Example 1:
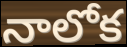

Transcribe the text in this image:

నాలోక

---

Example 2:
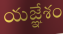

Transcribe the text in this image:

యజ్ఞేశం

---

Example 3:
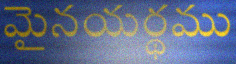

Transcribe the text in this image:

మైనయర్థము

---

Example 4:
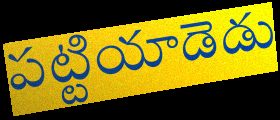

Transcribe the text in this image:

పట్టియాడెడు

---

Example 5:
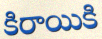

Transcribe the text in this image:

కిరాయికి